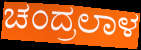
ಚಂದ್ರಲಾಳ